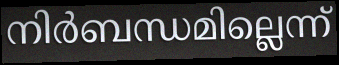
നിർബന്ധമില്ലെന്ന്